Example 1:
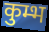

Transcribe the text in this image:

कुम्भ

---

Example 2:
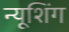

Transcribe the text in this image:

न्यूशिंग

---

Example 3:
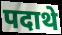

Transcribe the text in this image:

पदाथे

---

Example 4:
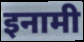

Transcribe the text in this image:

इनामी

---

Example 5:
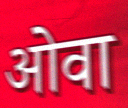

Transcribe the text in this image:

ओवा